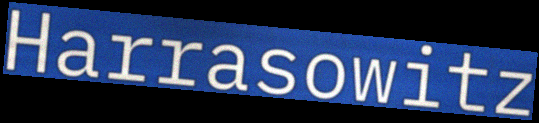
Harrasowitz